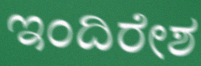
ಇಂದಿರೇಶ